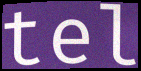
tel